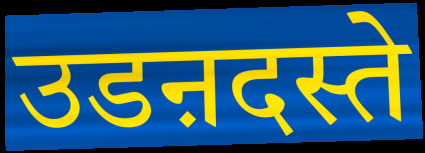
उडऩदस्ते